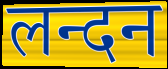
लन्दन